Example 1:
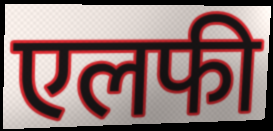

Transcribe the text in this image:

एलफी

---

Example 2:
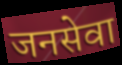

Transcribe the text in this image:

जनसेवा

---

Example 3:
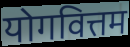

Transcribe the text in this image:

योगवित्तम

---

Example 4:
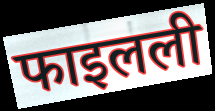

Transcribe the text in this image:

फाइलली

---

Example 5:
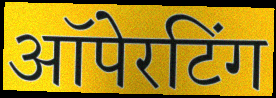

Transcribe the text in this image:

ऑपेरटिंग